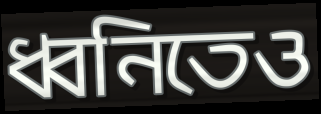
ধ্বনিতেও